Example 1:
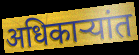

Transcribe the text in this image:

अधिकाऱ्यांत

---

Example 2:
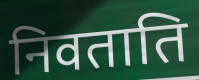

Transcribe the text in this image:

निवताति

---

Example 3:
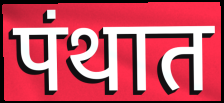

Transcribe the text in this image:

पंथात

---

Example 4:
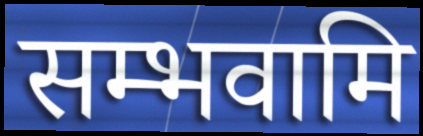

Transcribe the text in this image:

सम्भवामि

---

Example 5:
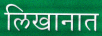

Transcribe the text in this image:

लिखानात